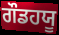
ਗੌਡਹਯੂ